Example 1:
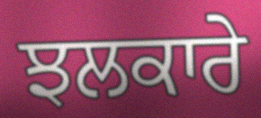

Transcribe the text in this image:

ਝਲਕਾਰੇ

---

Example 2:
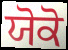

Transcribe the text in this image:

ਯੋਕੋ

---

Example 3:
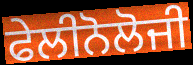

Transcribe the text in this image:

ਫੇਲੀਨੋਲੋਜੀ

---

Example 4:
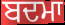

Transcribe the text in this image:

ਬਦਮਾ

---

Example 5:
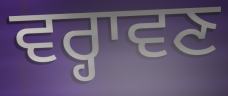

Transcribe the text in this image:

ਵਰ੍ਹਾਵਣ